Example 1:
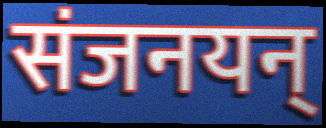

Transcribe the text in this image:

संजनयन्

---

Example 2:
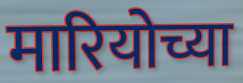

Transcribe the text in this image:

मारियोच्या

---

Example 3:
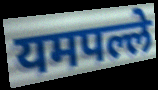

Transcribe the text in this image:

यमपल्ले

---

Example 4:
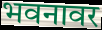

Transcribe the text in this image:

भवनावर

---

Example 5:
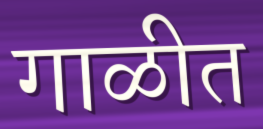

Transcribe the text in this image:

गाळीत